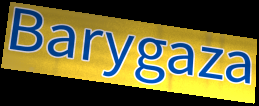
Barygaza